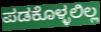
ಪಡಕೊಳ್ಳಲಿಲ್ಲ